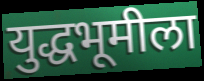
युद्धभूमीला